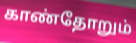
காண்தோறும்